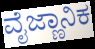
ವೈಜ್ಣಾನಿಕ